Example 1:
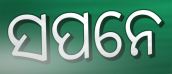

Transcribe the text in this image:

ସପନେ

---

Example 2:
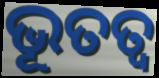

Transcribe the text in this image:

ଭୂତତ୍ୱ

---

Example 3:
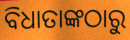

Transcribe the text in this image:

ବିଧାତାଙ୍କଠାରୁ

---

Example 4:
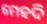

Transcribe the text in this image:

ମେହଦି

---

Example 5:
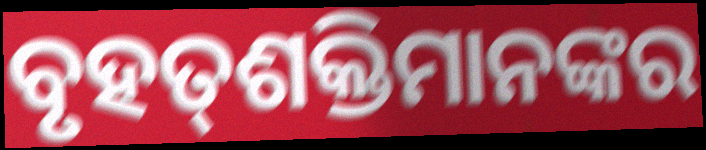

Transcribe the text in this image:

ବୃହତ୍‌ଶକ୍ତିମାନଙ୍କର